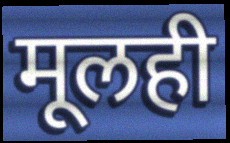
मूलही